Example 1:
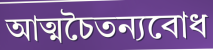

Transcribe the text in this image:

আত্মচৈতন্যবোধ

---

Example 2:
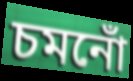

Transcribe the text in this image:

চমনোঁ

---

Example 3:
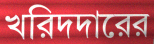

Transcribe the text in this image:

খরিদদারের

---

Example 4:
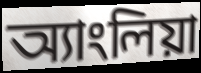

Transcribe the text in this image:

অ্যাংলিয়া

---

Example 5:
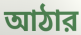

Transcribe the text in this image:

আঠার